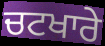
ਚਟਖਾਰੇ